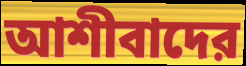
আশীবাদের